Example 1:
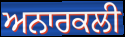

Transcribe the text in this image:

ਅਨਾਰਕਲੀ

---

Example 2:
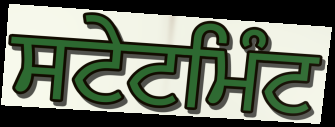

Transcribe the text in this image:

ਸਟੇਟਮਿੰਟ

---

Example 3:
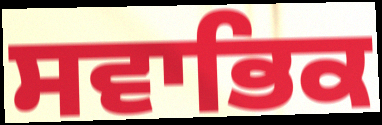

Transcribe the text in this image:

ਸਵਾਭਿਕ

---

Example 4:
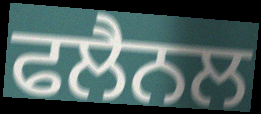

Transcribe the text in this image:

ਫਲੈਨਲ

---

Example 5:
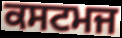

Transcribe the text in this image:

ਕਸਟਮਜ